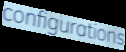
configurations